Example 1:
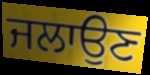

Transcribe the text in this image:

ਜਲਾਉਣ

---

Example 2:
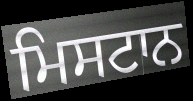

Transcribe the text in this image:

ਮਿਸਟਾਨ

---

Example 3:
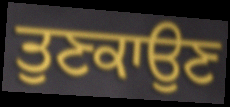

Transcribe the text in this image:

ਤੁਣਕਾਉਣ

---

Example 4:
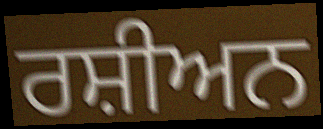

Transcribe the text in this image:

ਰਸ਼ੀਅਨ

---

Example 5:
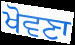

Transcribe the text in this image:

ਖੋਵਣਾ